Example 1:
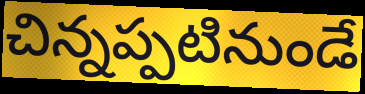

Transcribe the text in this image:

చిన్నప్పటినుండే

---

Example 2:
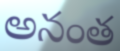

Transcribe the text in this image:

అనంత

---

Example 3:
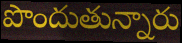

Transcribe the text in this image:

పొందుతున్నారు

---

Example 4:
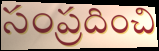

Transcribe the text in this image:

సంప్రదించి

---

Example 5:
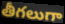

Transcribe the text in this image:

తీగలుగా